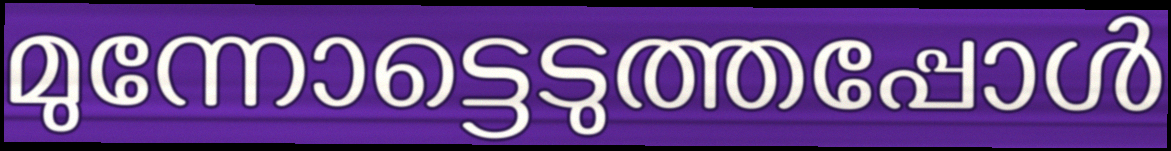
മുന്നോട്ടെടുത്തപ്പോൾ